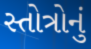
સ્તોત્રોનું